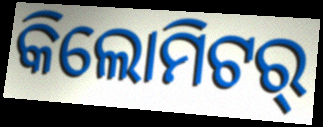
କିଲୋମିଟର୍